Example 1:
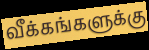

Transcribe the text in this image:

வீக்கங்களுக்கு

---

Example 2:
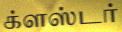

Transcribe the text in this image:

க்ளஸ்டர்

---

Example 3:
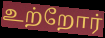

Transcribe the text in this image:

உற்றோர்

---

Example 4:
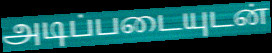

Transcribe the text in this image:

அடிப்படையுடன்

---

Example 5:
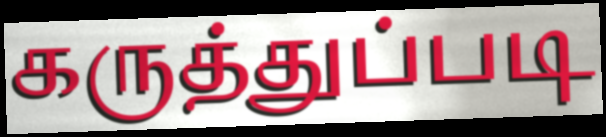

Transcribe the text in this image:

கருத்துப்படி